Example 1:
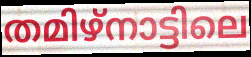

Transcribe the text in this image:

തമിഴ്നാട്ടിലെ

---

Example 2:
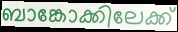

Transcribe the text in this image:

ബാങ്കോക്കിലേക്ക്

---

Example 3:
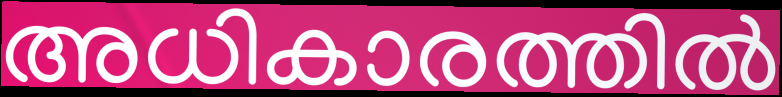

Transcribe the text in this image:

അധികാരത്തിൽ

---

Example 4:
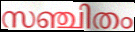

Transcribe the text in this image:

സഞ്ചിതം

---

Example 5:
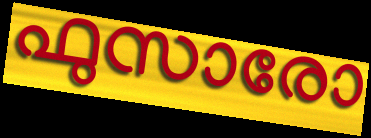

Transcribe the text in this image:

ഫുസാരോ